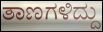
ತಾಣಗಳಿದ್ದು